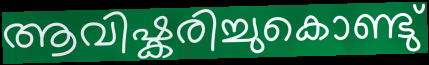
ആവിഷ്കരിച്ചുകൊണ്ടു്